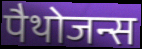
पैथोजन्स